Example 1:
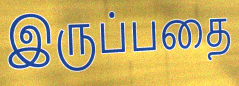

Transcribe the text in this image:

இருப்பதை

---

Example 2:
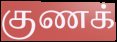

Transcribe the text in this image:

குணக்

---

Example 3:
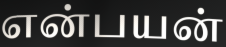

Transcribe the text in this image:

என்பயன்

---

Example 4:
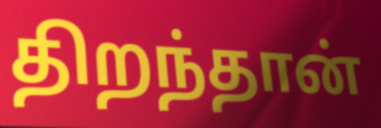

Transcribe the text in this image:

திறந்தான்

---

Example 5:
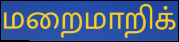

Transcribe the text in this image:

மறைமாறிக்